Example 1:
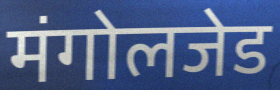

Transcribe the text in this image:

मंगोलजेड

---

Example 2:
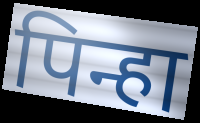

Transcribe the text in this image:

पिन्हा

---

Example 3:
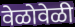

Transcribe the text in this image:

वेळोवेळी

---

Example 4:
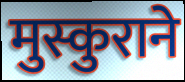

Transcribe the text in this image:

मुस्‍कुराने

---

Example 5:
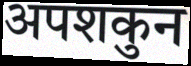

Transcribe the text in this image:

अपशकुन